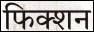
फिक्‍शन